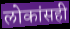
लोकांसही